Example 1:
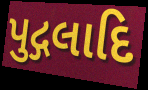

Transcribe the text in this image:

પુદ્ગલાદિ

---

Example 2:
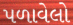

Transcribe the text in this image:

પળાવેલો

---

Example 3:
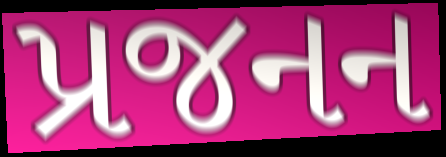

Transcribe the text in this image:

પ્રજનન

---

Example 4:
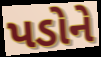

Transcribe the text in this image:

પડોને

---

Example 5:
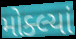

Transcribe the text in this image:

મોક્લ્યાં